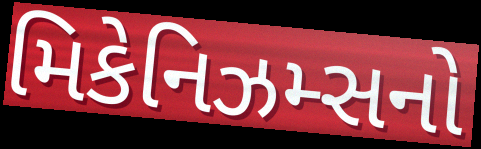
મિકેનિઝમ્સનો